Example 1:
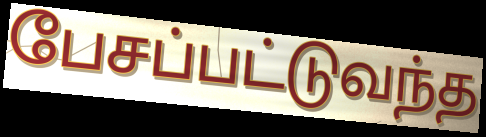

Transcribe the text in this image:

பேசப்பட்டுவந்த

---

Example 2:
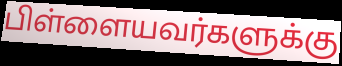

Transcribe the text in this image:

பிள்ளையவர்களுக்கு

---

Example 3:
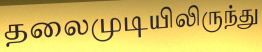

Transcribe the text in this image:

தலைமுடியிலிருந்து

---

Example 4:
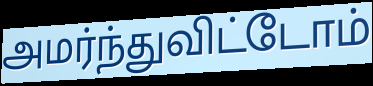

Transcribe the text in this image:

அமர்ந்துவிட்டோம்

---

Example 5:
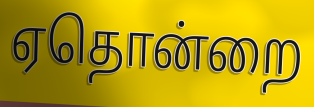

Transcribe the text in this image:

ஏதொன்றை